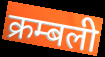
क्रम्बली